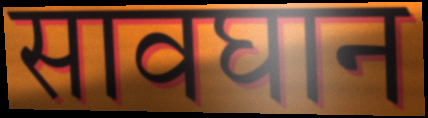
सावघान